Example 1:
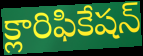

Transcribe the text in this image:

క్లారిఫికేషన్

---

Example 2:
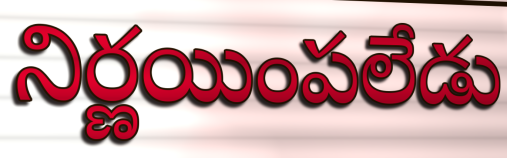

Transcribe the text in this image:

నిర్ణయింపలేడు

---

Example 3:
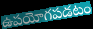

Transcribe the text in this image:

ఉపయోగపడటం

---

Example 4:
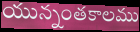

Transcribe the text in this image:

యున్నంతకాలము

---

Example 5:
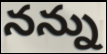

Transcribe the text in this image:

నన్ను